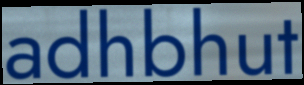
adhbhut